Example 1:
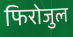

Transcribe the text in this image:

फिरोजुल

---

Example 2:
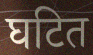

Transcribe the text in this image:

घटित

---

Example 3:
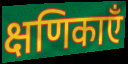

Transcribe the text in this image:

क्षणिकाएँ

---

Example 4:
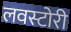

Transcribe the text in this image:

लवस्‍टोरी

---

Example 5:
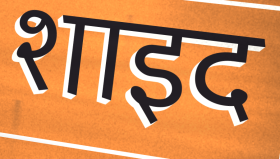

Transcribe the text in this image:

शाइद